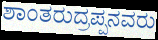
ಶಾಂತರುದ್ರಪ್ಪನವರು